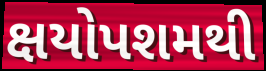
ક્ષયોપશમથી